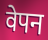
वेपन